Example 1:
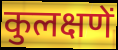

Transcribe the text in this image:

कुलक्षणें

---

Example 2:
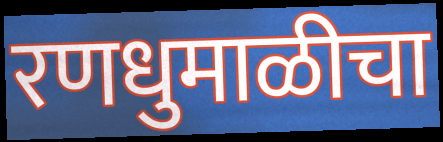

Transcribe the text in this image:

रणधुमाळीचा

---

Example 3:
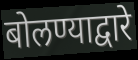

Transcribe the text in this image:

बोलण्याद्वारे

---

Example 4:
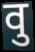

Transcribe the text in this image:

वु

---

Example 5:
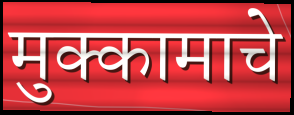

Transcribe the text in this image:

मुक्कामाचे